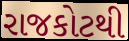
રાજકોટથી